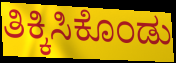
ತಿಕ್ಕಿಸಿಕೊಂಡು